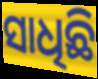
ସାଧିଛି